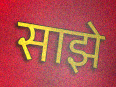
साझे